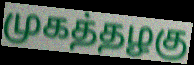
முகத்தழகு